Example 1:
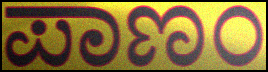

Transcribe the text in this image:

ಪಾಣಂ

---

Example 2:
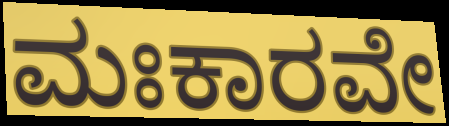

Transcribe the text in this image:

ಮಃಕಾರವೇ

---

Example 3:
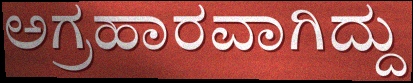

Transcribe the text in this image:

ಅಗ್ರಹಾರವಾಗಿದ್ದು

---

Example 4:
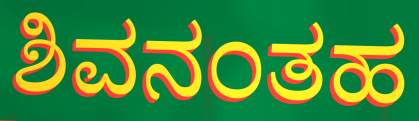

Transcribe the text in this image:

ಶಿವನಂತಹ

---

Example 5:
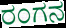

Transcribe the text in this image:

ರಂಗನ